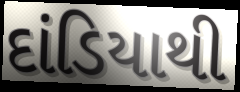
દાંડિયાથી